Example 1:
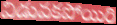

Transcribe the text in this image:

విడువకపోయిరి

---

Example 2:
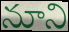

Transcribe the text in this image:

నూని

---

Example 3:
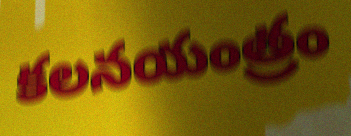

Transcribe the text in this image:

కలనయంత్రం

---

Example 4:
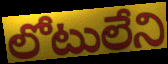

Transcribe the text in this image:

లోటులేని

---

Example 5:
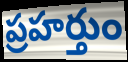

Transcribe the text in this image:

ప్రహర్తుం